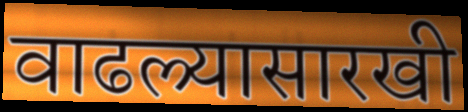
वाढल्यासारखी